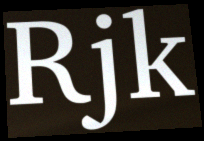
Rjk